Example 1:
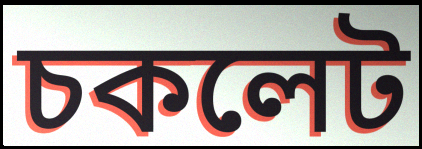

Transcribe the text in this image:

চকলেট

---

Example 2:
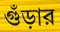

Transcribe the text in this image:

গুঁড়ার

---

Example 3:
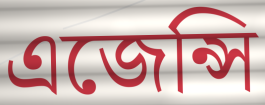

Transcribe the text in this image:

এজেন্সি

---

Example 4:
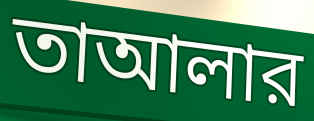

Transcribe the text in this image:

তাআলার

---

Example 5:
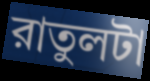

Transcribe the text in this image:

রাতুলটা